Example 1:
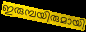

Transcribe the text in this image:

ഇരുമ്പയിരുമായി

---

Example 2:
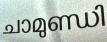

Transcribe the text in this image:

ചാമുണ്ഡി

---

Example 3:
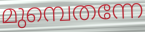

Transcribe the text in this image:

മുമ്പെതന്നേ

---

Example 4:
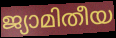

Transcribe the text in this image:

ജ്യാമിതീയ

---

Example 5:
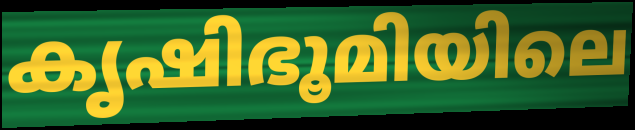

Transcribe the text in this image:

കൃഷിഭൂമിയിലെ